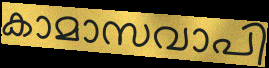
കാമാസവാപി